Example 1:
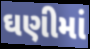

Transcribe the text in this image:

ઘણીમાં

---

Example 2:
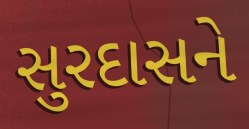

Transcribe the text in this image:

સુરદાસને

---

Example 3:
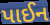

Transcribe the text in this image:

પાઈન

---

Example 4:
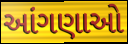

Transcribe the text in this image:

આંગણાઓ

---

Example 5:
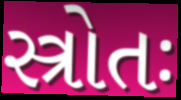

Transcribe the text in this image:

સ્ત્રોતઃ